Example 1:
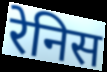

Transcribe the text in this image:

रेनिस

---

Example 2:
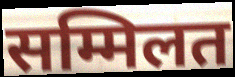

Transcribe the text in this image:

सम्मिलत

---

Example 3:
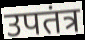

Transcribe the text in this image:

उपतंत्र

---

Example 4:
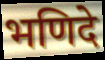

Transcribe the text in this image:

भणिदे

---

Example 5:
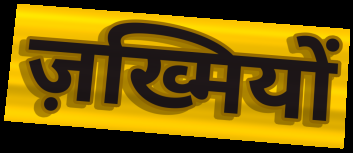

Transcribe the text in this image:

ज़ख्मियों